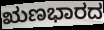
ಋಣಭಾರದ